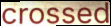
crossed